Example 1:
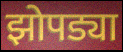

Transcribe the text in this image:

झोपड्या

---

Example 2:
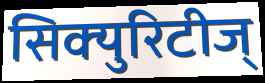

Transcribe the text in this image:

सिक्युरिटीज्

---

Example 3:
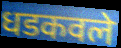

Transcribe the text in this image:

धडकवले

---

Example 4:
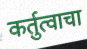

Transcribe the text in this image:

कर्तुत्वाचा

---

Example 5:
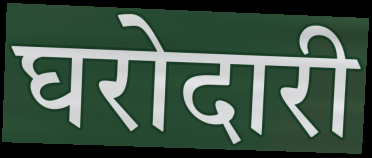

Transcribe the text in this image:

घरोदारी